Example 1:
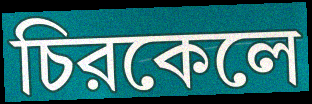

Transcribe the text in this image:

চিরকেলে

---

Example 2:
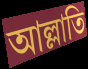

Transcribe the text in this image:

আল্লাতি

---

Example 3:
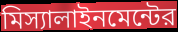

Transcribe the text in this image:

মিস্যালাইনমেন্টের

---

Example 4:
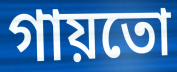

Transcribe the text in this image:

গায়তো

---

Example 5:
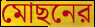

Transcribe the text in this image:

মোছনের